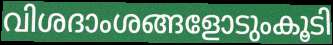
വിശദാംശങ്ങളോടുംകൂടി